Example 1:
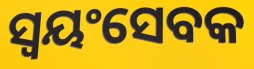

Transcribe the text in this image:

ସ୍ୱୟଂସେବକ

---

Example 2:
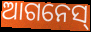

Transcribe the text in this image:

ଆଗନେସ୍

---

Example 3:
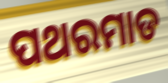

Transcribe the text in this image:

ପଥରମାଡ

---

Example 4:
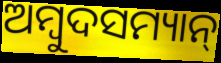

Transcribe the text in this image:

ଅମ୍ୱୁଦସମ୍ୟାନ୍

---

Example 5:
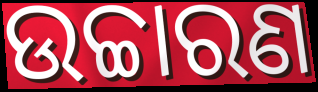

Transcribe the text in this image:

ଉଚ୍ଚାରଣ